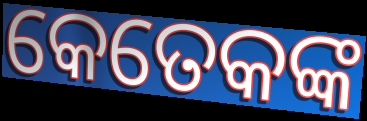
କେତେକଙ୍କ